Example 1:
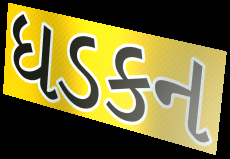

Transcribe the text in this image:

ધડકન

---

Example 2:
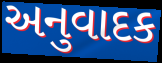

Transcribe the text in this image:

અનુવાદક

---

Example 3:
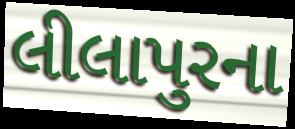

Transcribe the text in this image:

લીલાપુરના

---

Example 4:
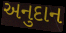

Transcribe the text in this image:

અનુદાન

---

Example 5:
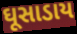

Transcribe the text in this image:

ઘૂસાડાય